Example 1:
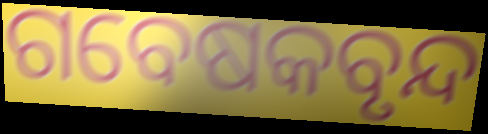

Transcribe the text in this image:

ଗବେଷକବୃନ୍ଦ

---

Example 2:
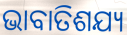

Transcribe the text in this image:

ଭାବାତିଶଯ୍ୟ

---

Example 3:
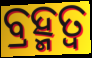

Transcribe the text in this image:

ବ୍ରହ୍ମତ୍ୱ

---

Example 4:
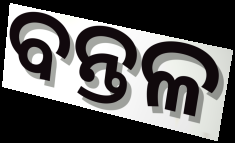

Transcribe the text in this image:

ବନ୍ତଳ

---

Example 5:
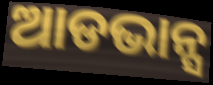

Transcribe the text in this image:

ଆଡଭାନ୍ସ